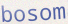
bosom